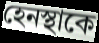
হেনস্থাকে